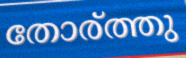
തോര്ത്തു